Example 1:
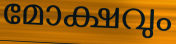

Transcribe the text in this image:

മോക്ഷവും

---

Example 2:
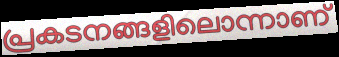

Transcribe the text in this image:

പ്രകടനങ്ങളിലൊന്നാണ്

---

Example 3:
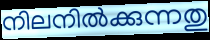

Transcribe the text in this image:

നിലനിൽക്കുന്നതു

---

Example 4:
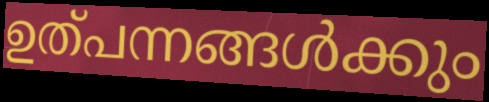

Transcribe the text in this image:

ഉത്പന്നങ്ങൾക്കും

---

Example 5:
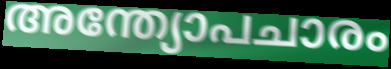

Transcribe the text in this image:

അന്ത്യോപചാരം